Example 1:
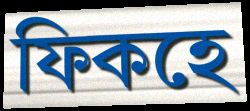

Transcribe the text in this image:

ফিকহে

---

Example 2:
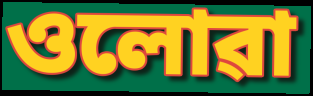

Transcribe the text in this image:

ওলোৱা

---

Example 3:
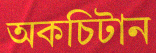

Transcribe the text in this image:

অকচিটান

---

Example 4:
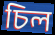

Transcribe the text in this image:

চিল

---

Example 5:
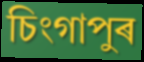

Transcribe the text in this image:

চিংগাপুৰ